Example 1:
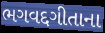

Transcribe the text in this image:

ભગવદ્દગીતાના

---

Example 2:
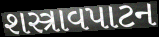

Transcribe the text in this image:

શસ્ત્રાવપાટન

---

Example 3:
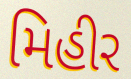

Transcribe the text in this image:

મિહીર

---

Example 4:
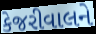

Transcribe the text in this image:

કેજરીવાલને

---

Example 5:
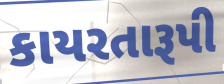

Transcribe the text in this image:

કાયરતારૂપી